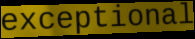
exceptional